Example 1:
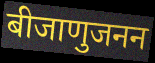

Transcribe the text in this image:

बीजाणुजनन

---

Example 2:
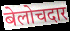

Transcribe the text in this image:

बेलोचदार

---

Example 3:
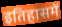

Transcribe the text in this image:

इतिहासमें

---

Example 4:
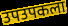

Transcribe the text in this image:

उपउपकला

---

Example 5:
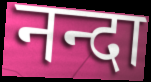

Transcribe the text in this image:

नन्दा